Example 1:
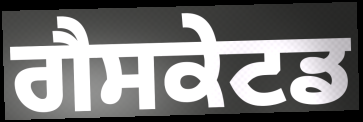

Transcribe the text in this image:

ਗੈਸਕੇਟਡ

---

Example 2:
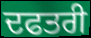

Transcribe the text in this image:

ਦਫਤਰੀ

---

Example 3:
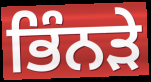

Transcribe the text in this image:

ਭਿੰਨੜੇ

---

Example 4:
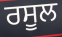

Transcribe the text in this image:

ਰਸੂਲ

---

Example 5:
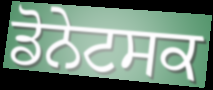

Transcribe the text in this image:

ਡੋਨੇਟਸਕ